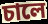
চালে